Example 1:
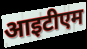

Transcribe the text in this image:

आइटीएम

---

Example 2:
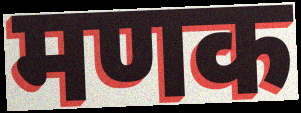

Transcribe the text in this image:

मणक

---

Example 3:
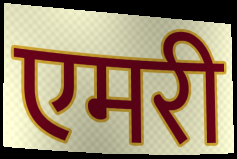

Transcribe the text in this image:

एमरी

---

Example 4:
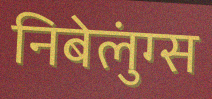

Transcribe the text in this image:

निबेलुंग्स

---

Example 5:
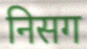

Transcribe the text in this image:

निसग